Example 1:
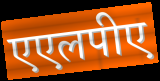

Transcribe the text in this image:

एएलपीए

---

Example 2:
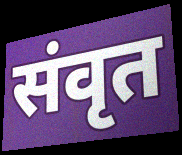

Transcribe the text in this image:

संवृत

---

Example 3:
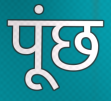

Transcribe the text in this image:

पूंछ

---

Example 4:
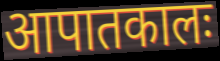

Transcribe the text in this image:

आपातकालः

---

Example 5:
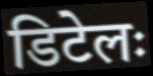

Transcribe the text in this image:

डिटेलः